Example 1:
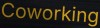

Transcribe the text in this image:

Coworking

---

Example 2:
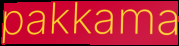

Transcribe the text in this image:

pakkama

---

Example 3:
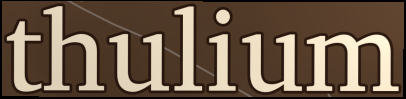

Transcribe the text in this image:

thulium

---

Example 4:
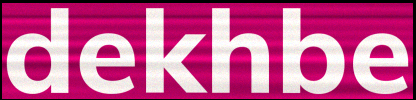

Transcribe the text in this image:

dekhbe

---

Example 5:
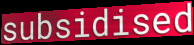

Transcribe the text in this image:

subsidised